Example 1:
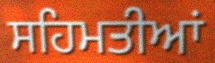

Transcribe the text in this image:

ਸਹਿਮਤੀਆਂ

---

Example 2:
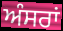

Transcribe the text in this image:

ਅੰਸਰਾਂ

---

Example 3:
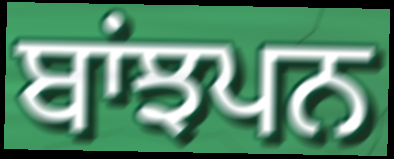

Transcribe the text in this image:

ਬਾਂਝਪਨ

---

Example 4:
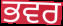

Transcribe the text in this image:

ਭਵਰ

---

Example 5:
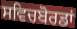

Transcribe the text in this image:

ਸਵਿਚਬੋਰਡਾਂ